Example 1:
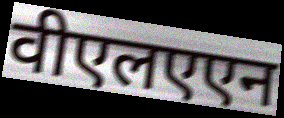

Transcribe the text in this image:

वीएलएएन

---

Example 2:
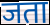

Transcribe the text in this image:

जता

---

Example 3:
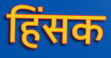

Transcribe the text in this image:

हिंसक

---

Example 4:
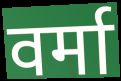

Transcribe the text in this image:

वर्मा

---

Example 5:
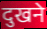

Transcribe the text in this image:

दुखने